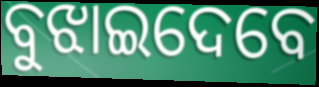
ବୁଝାଇଦେବେ